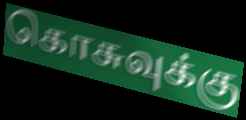
கொசுவுக்கு